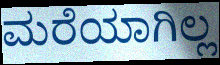
ಮರೆಯಾಗಿಲ್ಲ